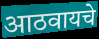
आठवायचे